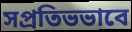
সপ্রতিভভাবে